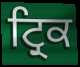
ਟ੍ਰਿਕ